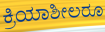
ಕ್ರಿಯಾಶೀಲರೂ